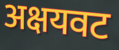
अक्षयवट